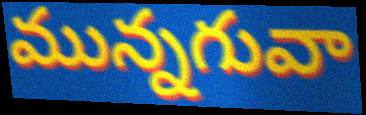
మున్నగువా